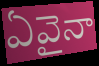
ఏవైనా